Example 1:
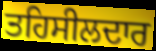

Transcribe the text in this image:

ਤਹਿਸੀਲਦਾਰ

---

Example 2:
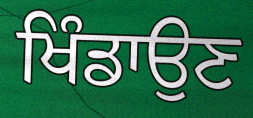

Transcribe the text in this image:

ਖਿੰਡਾਉਣ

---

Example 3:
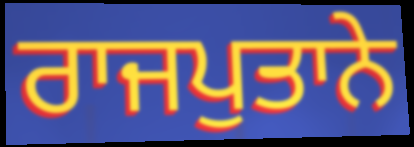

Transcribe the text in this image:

ਰਾਜਪੁਤਾਨੇ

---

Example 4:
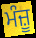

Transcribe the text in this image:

ਮੰਜ਼ੂ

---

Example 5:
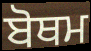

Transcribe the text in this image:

ਬੋਥਮ